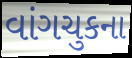
વાંગચુકના